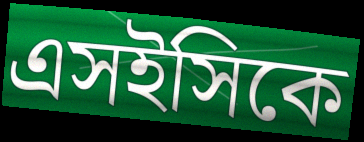
এসইসিকে